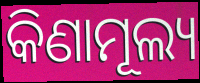
କିଣାମୂଲ୍ୟ